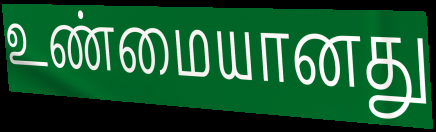
உண்மையானது